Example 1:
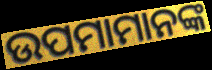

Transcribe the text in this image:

ଉପମାମାନଙ୍କ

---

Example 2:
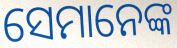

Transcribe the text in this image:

ସେମାନେଙ୍କ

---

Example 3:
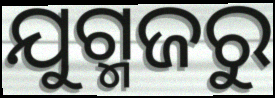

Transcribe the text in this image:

ଯୁଗ୍ମଜରୁ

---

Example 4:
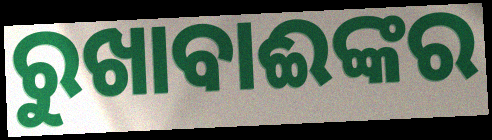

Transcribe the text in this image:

ରୁଖାବାଈଙ୍କର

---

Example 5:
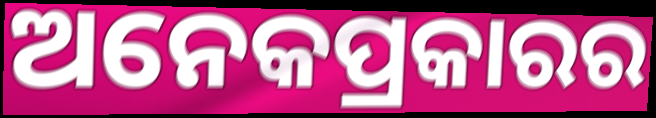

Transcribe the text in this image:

ଅନେକପ୍ରକାରର